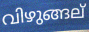
വിഴുങ്ങല്